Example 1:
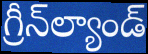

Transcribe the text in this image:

గ్రీన్‌ల్యాండ్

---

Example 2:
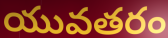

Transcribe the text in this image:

యువతరం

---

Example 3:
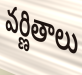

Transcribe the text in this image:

వర్ణితాలు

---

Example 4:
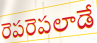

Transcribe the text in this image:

రెపరెపలాడే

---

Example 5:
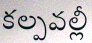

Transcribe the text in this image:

కల్పవల్లీ